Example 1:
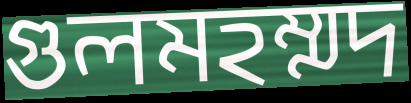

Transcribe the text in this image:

গুলমহম্মদ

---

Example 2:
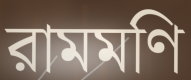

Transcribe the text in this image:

রামমণি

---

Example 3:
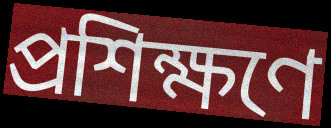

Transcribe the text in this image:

প্রশিক্ষণে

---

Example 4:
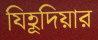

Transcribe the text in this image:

যিহূদিয়ার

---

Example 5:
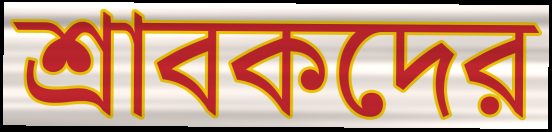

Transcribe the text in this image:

শ্রাবকদের